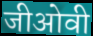
जीओवी